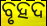
ବୃହଦ